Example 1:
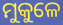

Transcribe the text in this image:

ମୁକୁଳେ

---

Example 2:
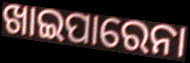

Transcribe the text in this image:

ଖାଇପାରେନା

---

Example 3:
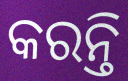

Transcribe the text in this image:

କରନ୍ତି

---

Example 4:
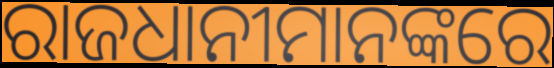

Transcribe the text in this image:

ରାଜଧାନୀମାନଙ୍କରେ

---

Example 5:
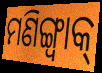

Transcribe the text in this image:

ମଣିଙ୍ଗ୍ୱାକ୍